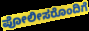
ಪೋಲೀಸರೊಂದಿಗೆ